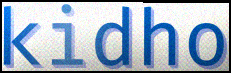
kidho